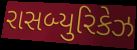
રાસબ્યુરિકેઝ